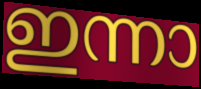
ഇന്നാ